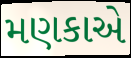
મણકાએ